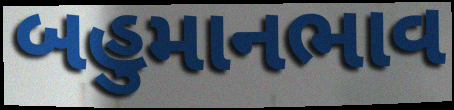
બહુમાનભાવ